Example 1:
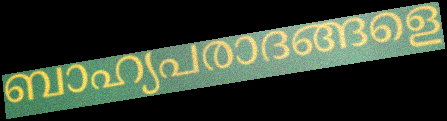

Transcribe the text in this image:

ബാഹ്യപരാദങ്ങളെ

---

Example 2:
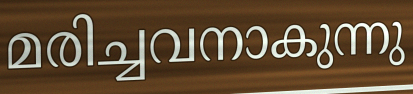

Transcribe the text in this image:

മരിച്ചവനാകുന്നു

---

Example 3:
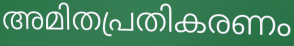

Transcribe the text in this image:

അമിതപ്രതികരണം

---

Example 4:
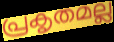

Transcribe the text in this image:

പ്രകൃതമല്ല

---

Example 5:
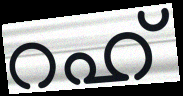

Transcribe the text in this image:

റഹ്